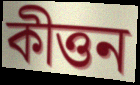
কীত্তন